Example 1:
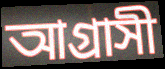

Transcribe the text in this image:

আগ্ৰাসী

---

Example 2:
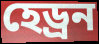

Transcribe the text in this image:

হেড্ৰন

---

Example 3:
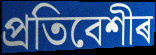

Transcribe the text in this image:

প্ৰতিবেশীৰ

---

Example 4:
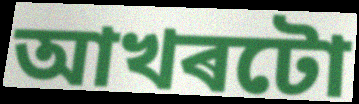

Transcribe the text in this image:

আখৰটো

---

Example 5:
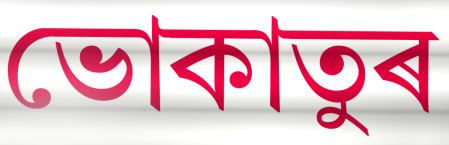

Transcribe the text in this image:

ভোকাতুৰ